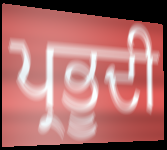
ਪ੍ਰਭੂਦੀ